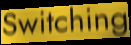
Switching